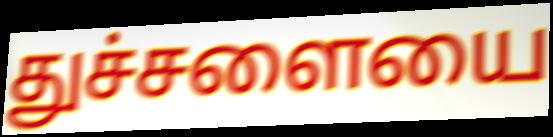
துச்சளையை